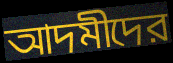
আদমীদের